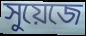
সুয়েজে